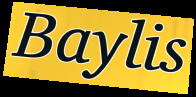
Baylis